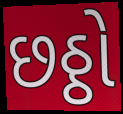
છઠ્ઠો